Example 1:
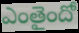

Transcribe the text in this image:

ఎంతైందో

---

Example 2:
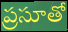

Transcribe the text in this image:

ప్రసూతో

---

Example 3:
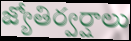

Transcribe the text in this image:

జ్యోతిర్వర్షాలు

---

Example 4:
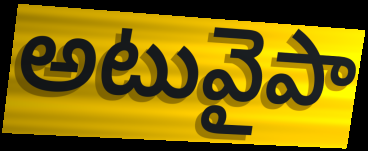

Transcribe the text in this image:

అటువైపా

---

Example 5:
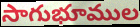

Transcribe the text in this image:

సాగుభూముల